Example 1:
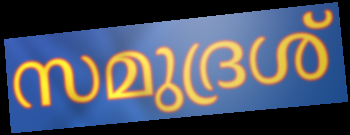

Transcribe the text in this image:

സമുദ്രശ്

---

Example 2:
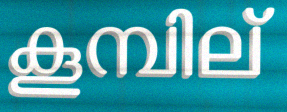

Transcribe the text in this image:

കൂമ്പില്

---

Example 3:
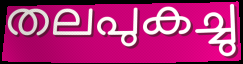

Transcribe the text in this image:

തലപുകച്ചു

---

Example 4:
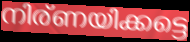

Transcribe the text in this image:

നിര്ണയിക്കട്ടെ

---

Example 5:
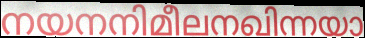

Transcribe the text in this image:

നയനനിമീലനഖിന്നയാ